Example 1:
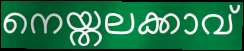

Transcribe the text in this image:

നെയ്തലക്കാവ്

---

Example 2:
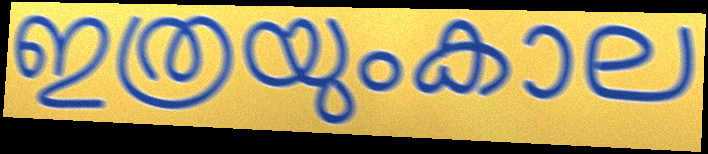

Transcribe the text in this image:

ഇത്രയുംകാല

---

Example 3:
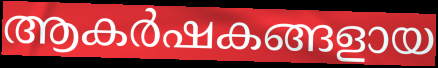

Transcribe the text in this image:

ആകർഷകങ്ങളായ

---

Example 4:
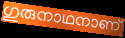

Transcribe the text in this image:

ഗുരുനാഥനാണ്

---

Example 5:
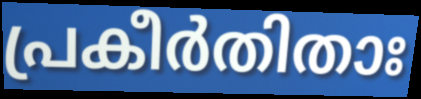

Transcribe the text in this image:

പ്രകീർതിതാഃ